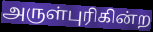
அருள்புரிகின்ற